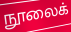
நூலைக்